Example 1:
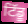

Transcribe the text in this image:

ਟਿੱਡੂ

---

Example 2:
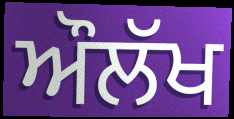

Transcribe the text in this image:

ਔਲੱਖ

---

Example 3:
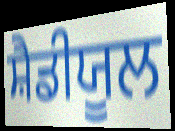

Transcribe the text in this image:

ਸ਼ੈਡੀਯੂਲ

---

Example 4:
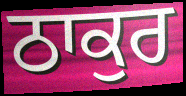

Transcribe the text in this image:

ਠਾਕੁਰ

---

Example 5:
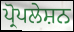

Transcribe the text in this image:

ਪ੍ਰੋਪਲੇਸ਼ਨ